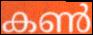
കൺ